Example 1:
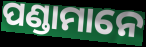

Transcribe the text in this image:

ପଣ୍ଡାମାନେ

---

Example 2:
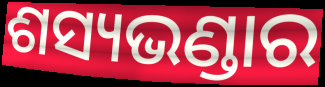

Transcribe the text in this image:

ଶସ୍ୟଭଣ୍ଡାର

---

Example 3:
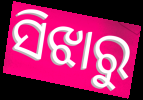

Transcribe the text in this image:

ସିଝାରୁ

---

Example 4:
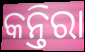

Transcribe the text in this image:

କନ୍ତିରା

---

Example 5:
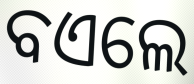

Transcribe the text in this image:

ବଏଲେ